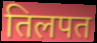
तिलपत